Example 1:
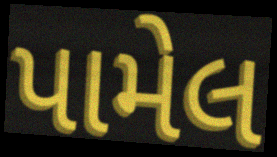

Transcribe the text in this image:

પામેલ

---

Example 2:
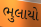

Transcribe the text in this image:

ભુલાયો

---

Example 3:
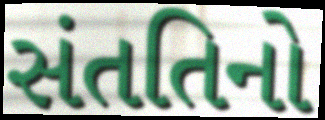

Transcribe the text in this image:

સંતતિનો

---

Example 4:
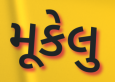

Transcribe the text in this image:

મૂકેલુ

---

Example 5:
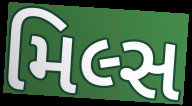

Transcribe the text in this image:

મિલ્સ